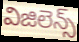
విజిలెన్స్